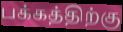
பக்கத்திற்கு